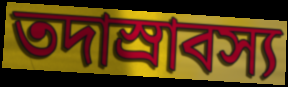
তদাস্রাবস্য